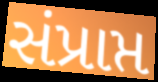
સંપ્રાપ્ત